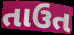
તાઉત